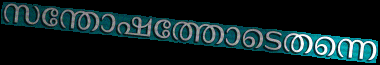
സന്തോഷത്തോടെതന്നെ